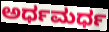
ಅರ್ಧಮರ್ಧ